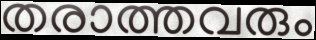
തരാത്തവരും